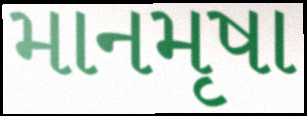
માનમૃષા